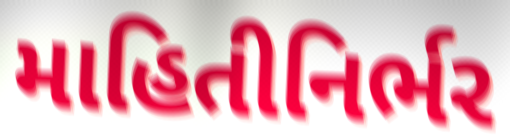
માહિતીનિર્ભર